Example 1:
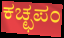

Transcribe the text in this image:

ಕಚ್ಛಪಂ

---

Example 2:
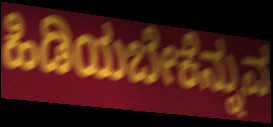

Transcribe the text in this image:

ಹಿಡಿಯಬೇಕೆನ್ನುವ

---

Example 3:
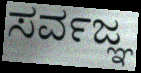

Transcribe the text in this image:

ಸರ್ವಜ್ಞ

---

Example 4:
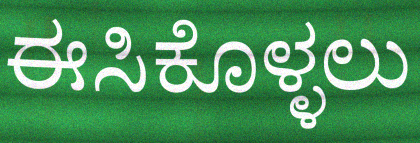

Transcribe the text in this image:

ಈಸಿಕೊಳ್ಳಲು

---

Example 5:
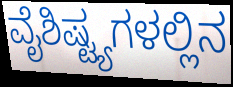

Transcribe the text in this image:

ವೈಶಿಷ್ಟ್ಯಗಳಲ್ಲಿನ